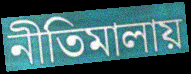
নীতিমালায়